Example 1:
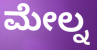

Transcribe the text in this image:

ಮೇಲ್ನ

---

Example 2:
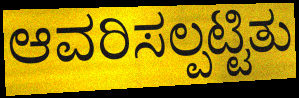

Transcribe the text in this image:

ಆವರಿಸಲ್ಪಟ್ಟಿತು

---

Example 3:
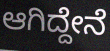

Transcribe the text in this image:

ಆಗಿದ್ದೇನೆ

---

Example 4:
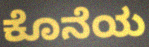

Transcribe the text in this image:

ಕೊನೆಯ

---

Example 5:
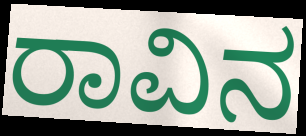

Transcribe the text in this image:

ರಾವಿನ